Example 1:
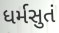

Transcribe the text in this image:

ધર્મસુતં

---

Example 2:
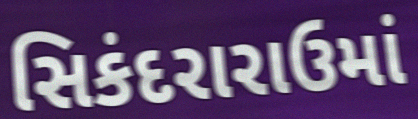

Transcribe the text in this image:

સિકંદરારાઉમાં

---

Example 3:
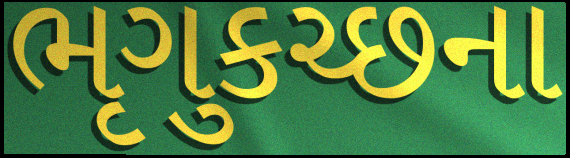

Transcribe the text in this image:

ભૃગુકચ્છના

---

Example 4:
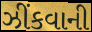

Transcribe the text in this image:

ઝીંકવાની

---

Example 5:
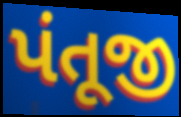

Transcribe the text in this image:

પંતૂજી